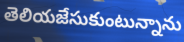
తెలియజేసుకుంటున్నాను